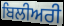
ਬਿਲੀਅਰੀ